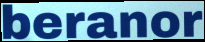
beranor